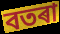
বতৰা